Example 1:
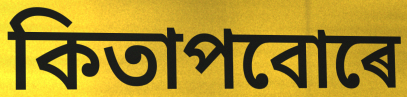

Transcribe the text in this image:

কিতাপবোৰে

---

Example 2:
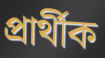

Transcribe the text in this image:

প্ৰাৰ্থীক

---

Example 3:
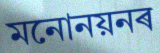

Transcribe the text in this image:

মনোনয়নৰ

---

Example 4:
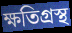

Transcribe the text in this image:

ক্ষতিগ্ৰস্থ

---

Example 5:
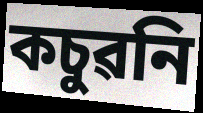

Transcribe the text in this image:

কচুৱনি